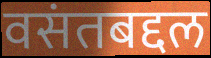
वसंतबद्दल